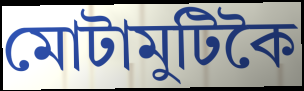
মোটামুটিকৈ